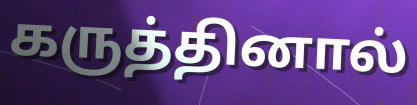
கருத்தினால்